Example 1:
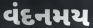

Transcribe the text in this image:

વંદનમય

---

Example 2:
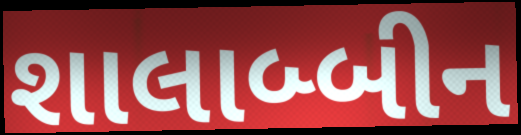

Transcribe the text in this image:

શાલાબ્બીન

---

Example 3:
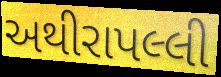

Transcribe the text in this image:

અથીરાપલ્લી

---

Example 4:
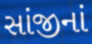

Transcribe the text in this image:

સાંજીનાં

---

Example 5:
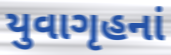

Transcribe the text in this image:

યુવાગૃહનાં